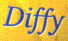
Diffy